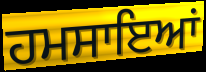
ਹਮਸਾਇਆਂ